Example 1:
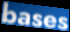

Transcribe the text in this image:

bases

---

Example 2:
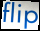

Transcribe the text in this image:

flip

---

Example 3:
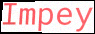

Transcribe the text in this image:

Impey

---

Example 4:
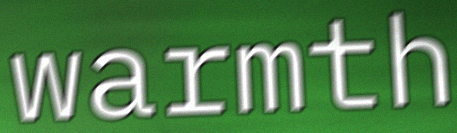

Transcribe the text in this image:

warmth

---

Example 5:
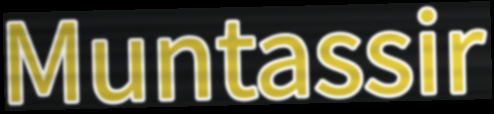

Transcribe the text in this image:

Muntassir